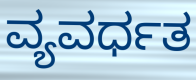
ವ್ಯವರ್ಧತ